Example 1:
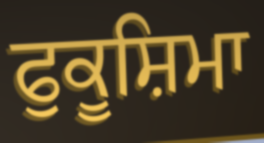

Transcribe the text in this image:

ਫੁਕੂਸ਼ਿਮਾ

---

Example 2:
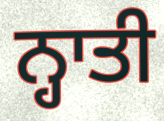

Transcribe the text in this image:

ਨ੍ਹਾਤੀ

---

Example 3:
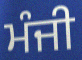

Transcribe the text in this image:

ਮੰਜੀ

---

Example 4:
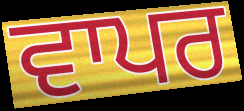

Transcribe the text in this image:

ਵਾਪਰ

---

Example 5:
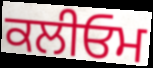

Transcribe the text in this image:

ਕਲੀਓਮ